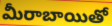
మీరాబాయితో